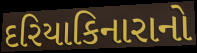
દરિયાકિનારાનો